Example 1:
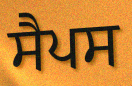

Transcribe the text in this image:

ਸੈਪਸ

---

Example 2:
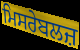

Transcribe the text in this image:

ਮਿਸਰੇਬਲਜ਼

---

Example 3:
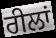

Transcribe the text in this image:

ਰੀਲਾਂ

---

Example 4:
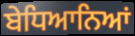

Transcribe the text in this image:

ਬੇਧਿਆਨਿਆਂ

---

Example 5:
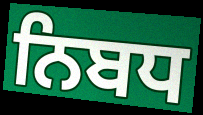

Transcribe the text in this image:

ਨਿਬਧ